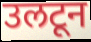
उलटून